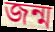
জন্ম